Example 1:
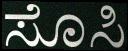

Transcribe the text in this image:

ಸೊಸಿ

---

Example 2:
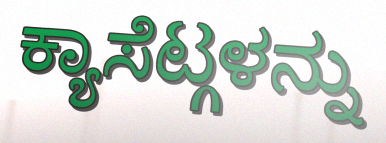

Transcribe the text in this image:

ಕ್ಯಾಸೆಟ್ಗಳನ್ನು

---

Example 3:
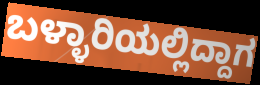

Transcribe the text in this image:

ಬಳ್ಳಾರಿಯಲ್ಲಿದ್ದಾಗ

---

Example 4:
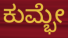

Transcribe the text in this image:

ಕುಮ್ಭೇ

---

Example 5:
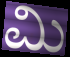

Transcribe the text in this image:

ಮಿ